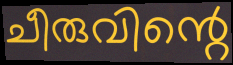
ചീരുവിന്റെ